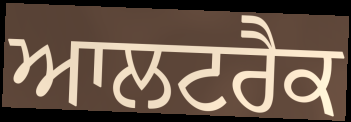
ਆਲਟਰੈਕ